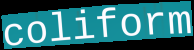
coliform